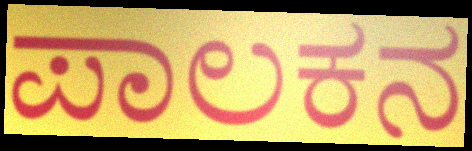
ಪಾಲಕನ